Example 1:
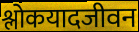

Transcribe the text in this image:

श्लोकयादजीवन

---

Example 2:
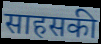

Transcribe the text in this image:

साहसकी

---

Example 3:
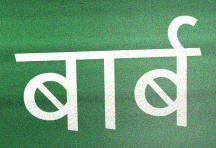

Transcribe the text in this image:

बार्ब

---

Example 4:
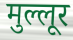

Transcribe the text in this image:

मुल्लूर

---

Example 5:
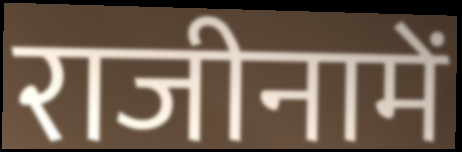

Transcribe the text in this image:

राजीनामें